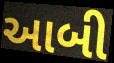
આબી